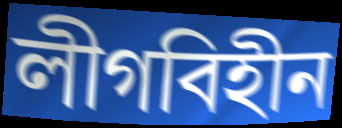
লীগবিহীন